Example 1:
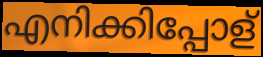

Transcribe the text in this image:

എനിക്കിപ്പോള്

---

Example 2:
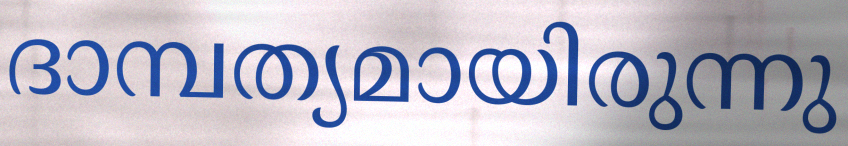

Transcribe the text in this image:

ദാമ്പത്യമായിരുന്നു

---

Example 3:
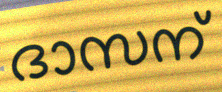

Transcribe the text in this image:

ദാസന്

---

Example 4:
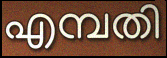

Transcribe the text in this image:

എമ്പതി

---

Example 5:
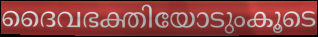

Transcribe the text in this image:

ദൈവഭക്തിയോടുംകൂടെ